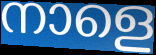
നാളെ